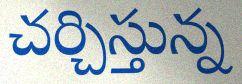
చర్చిస్తున్న